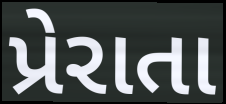
પ્રેરાતા